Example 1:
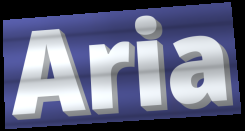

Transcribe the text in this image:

Aria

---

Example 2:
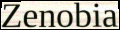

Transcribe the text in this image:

Zenobia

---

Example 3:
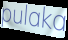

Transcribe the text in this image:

pulaka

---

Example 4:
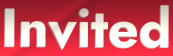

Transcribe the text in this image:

Invited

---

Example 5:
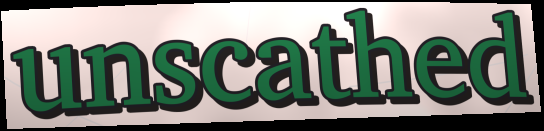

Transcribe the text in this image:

unscathed